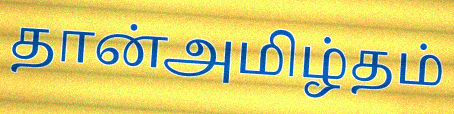
தான்அமிழ்தம்